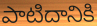
పాటిదానికి